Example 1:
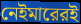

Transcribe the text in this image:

নেইমারেরই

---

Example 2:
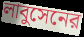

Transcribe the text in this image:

লাবুসেনের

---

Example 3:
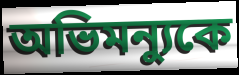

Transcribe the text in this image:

অভিমন্যুকে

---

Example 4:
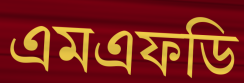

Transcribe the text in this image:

এমএফডি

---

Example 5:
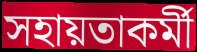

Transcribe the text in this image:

সহায়তাকর্মী